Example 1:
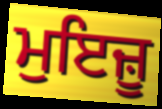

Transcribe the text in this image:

ਮੁਇਜ਼ੂ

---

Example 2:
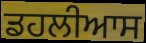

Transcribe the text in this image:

ਡਹਲੀਆਸ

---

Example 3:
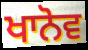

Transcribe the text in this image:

ਖਾਨੋਵ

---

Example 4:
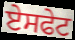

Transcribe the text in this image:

ਏਸਫੇਟ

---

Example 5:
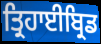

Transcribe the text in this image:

ਤ੍ਰਿਹਾਈਬ੍ਰਿਡ